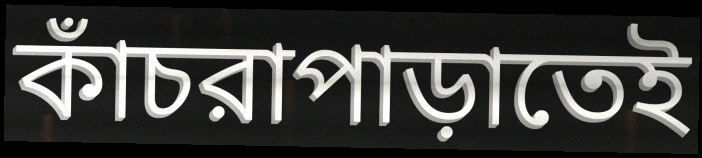
কাঁচরাপাড়াতেই